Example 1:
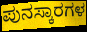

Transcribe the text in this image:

ಪುನಸ್ಕಾರಗಳ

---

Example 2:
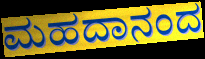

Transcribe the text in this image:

ಮಹದಾನಂದ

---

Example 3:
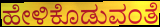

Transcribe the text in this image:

ಹೇಳಿಕೊಡುವಂತೆ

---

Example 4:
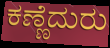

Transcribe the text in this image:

ಕಣ್ಣೆದುರು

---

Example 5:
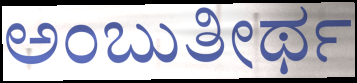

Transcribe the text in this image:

ಅಂಬುತೀರ್ಥ